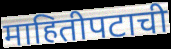
माहितीपटाची